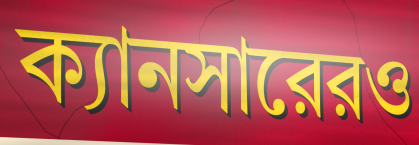
ক্যানসারেরও